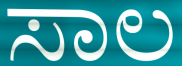
ಸಾಲ